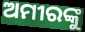
ଅମୀରଙ୍କୁ